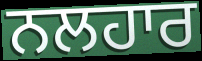
ਨਲਹਾਰ